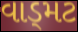
વાડ્મટ